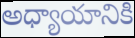
అధ్యాయానికి